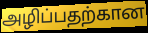
அழிப்பதற்கான